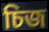
চিজ